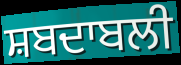
ਸ਼ਬਦਾਬਲੀ